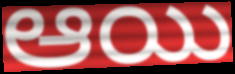
ఆయి